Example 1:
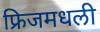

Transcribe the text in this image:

फ्रिजमधली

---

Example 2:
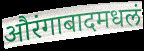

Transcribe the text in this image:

औरंगाबादमधलं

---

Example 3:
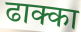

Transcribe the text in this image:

ढाक्का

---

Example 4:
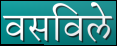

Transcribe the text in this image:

वसविले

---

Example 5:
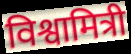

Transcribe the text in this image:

विश्वामित्री